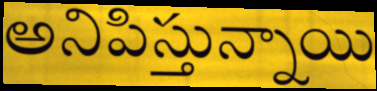
అనిపిస్తున్నాయి